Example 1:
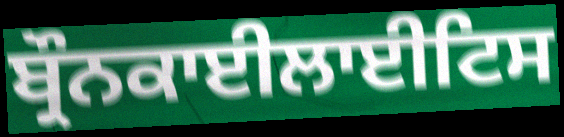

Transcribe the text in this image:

ਬ੍ਰੌਨਕਾਈਲਾਈਟਿਸ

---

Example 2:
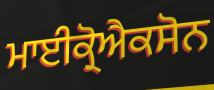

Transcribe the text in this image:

ਮਾਈਕ੍ਰੋਐਕਸੋਨ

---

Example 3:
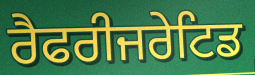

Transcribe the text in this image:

ਰੈਫਰੀਜਰੇਟਿਡ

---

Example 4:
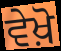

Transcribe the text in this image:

ਵੇਖ਼ੋ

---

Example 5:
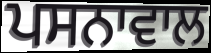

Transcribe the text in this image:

ਪਸਨਾਵਾਲ